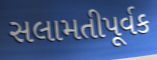
સલામતીપૂર્વક